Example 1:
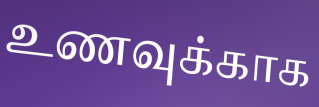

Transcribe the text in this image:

உணவுக்காக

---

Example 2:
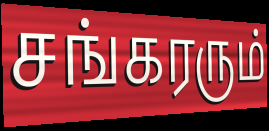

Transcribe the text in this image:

சங்கரரும்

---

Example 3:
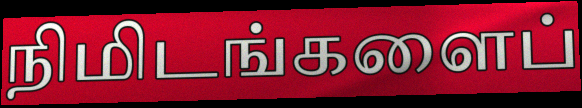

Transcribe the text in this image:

நிமிடங்களைப்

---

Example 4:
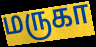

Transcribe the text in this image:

மருகா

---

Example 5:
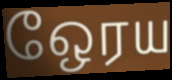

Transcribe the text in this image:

ஒேரய